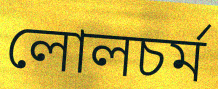
লোলচর্ম